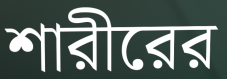
শারীরের